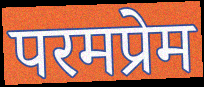
परमप्रेम